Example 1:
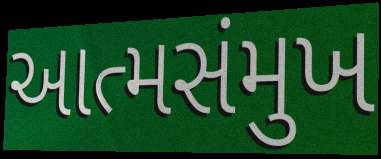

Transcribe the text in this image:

આત્મસંમુખ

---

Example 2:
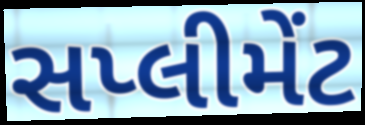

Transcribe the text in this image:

સપ્લીમેંટ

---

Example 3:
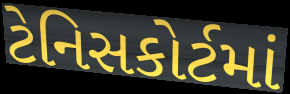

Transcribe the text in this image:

ટેનિસકોર્ટમાં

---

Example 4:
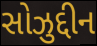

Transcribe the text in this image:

સોઝુદ્દીન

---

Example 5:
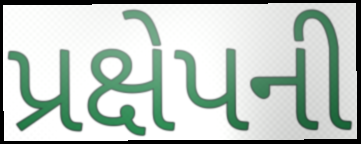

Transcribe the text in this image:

પ્રક્ષેપની